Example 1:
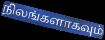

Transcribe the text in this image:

நிலங்களாகவும்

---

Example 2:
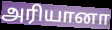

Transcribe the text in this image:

அரியானா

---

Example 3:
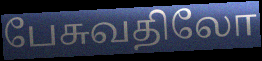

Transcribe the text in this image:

பேசுவதிலோ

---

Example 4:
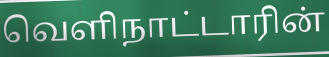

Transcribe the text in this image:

வெளிநாட்டாரின்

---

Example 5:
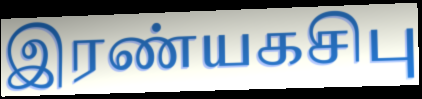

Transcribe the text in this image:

இரண்யகசிபு